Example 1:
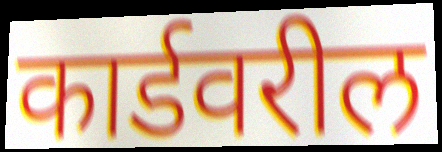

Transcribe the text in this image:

कार्डवरील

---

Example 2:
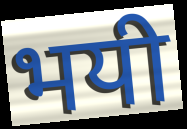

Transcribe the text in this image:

भयी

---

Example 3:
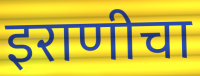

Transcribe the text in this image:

इराणीचा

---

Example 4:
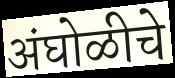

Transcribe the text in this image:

अंघोळीचे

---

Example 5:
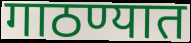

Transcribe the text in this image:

गाठण्यात